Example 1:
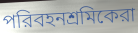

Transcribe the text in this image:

পরিবহনশ্রমিকেরা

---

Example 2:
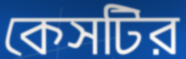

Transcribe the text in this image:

কেসটির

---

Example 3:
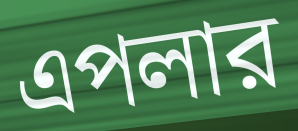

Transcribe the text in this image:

এপলার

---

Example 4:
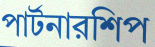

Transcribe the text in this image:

পার্টনারশিপ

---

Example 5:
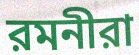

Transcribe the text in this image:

রমনীরা